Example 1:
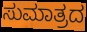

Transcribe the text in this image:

ಸುಮಾತ್ರದ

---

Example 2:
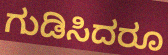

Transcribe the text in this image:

ಗುಡಿಸಿದರೂ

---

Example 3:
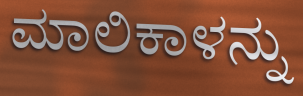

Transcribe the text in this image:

ಮಾಲಿಕಾಳನ್ನು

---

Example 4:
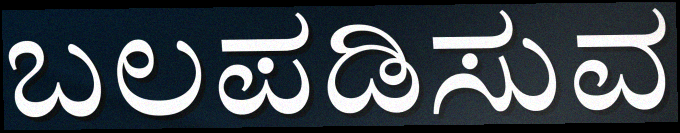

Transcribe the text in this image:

ಬಲಪಡಿಸುವ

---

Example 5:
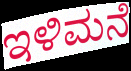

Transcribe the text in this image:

ಇಳಿಮನೆ